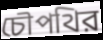
চৌপথির